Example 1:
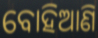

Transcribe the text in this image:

ବୋହିଆଣି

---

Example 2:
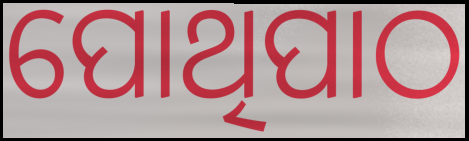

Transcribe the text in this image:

ପୋଥିପାଠ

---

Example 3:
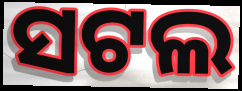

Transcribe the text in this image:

ସଟଲ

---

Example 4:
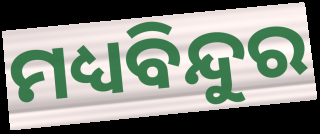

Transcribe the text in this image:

ମଧ୍ୟବିନ୍ଦୁର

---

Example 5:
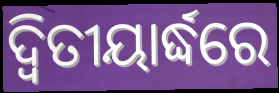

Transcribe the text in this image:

ଦ୍ୱିତୀୟାର୍ଦ୍ଧରେ